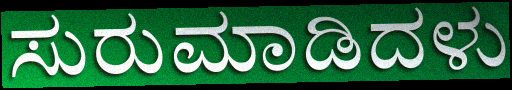
ಸುರುಮಾಡಿದಳು